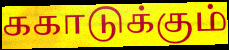
ககாடுக்கும்